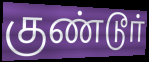
குண்டூர்